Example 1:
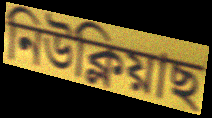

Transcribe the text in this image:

নিউক্লিয়াছ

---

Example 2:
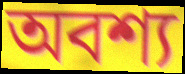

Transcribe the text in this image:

অবশ্য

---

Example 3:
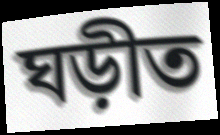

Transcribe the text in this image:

ঘড়ীত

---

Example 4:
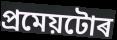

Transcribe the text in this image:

প্ৰমেয়টোৰ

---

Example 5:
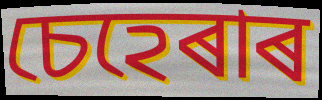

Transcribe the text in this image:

চেহেৰাৰ